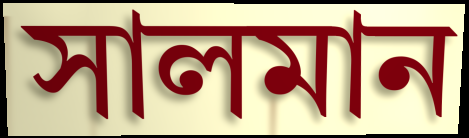
সালমান